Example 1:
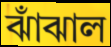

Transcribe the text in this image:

ঝাঁঝাল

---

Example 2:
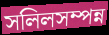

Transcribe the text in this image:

সলিলসম্পন্ন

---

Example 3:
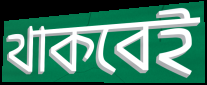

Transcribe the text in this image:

থাকবেই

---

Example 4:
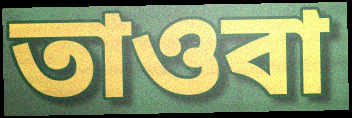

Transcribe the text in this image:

তাওবা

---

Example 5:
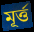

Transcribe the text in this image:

মূর্ত্ত